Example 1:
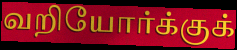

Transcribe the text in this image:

வறியோர்க்குக்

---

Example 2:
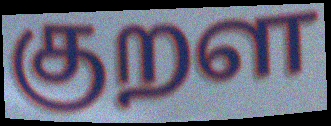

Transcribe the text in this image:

குறள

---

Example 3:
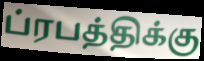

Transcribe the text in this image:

ப்ரபத்திக்கு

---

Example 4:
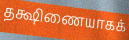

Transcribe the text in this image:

தக்ஷிணையாகக்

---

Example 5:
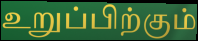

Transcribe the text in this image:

உறுப்பிற்கும்